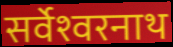
सर्वेश्वरनाथ